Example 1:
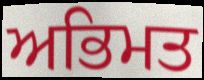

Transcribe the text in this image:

ਅਭਿਮਤ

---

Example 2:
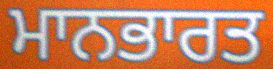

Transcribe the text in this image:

ਮਾਨਭਾਰਤ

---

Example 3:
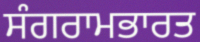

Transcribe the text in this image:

ਸੰਗਰਾਮਭਾਰਤ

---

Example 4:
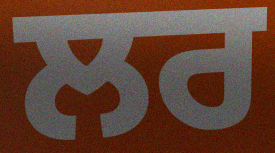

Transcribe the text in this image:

ਲਰ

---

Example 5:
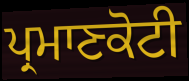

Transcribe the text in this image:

ਪ੍ਰਮਾਣਕੋਟੀ